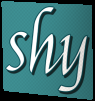
shy